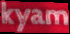
kyam